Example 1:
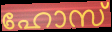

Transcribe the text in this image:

ഹോസ്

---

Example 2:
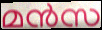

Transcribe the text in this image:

മൻസ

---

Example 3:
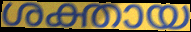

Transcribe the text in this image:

ശക്തായ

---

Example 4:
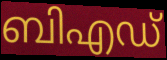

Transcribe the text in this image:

ബിഎഡ്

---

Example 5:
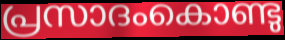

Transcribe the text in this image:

പ്രസാദംകൊണ്ടു